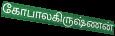
கோபாலகிருஷ்ணன்